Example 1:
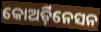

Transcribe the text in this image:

କୋଅର୍ଡ଼ିନେସନ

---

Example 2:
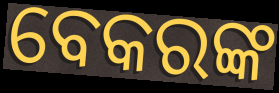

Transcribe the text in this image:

ବେକରଙ୍କ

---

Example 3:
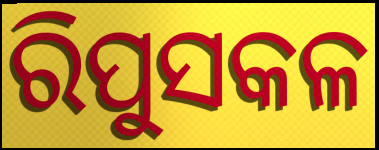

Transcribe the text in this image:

ରିପୁସକଳ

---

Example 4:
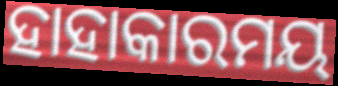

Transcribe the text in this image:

ହାହାକାରମୟ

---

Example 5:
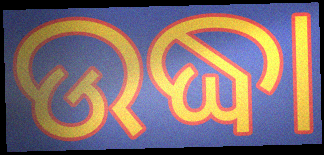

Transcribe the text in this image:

ଉଦ୍ଧା